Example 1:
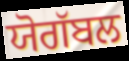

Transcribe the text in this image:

ਯੋਗੱਬਲ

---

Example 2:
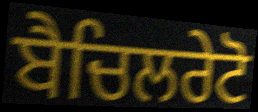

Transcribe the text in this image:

ਬੈਚਿਲਰੇਟੋ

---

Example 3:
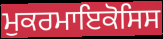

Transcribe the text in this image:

ਮੁਕਰਮਾਇਕੋਸਿਸ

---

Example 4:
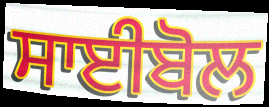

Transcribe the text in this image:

ਸਾਈਬੋਲ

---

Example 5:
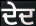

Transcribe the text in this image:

ਦੇਦ